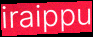
iraippu